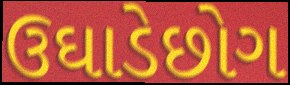
ઉઘાડેછોગ